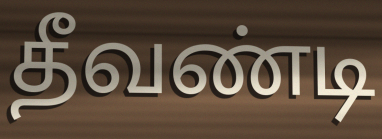
தீவண்டி